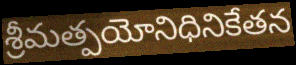
శ్రీమత్పయోనిధినికేతన